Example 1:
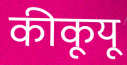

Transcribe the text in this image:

कीकूयू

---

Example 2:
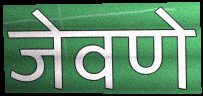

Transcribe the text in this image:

जेवणे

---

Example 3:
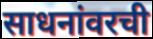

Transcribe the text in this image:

साधनांवरची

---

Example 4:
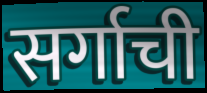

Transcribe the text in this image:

सर्गाची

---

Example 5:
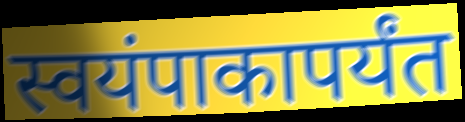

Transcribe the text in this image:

स्वयंपाकापर्यंत